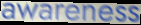
awareness